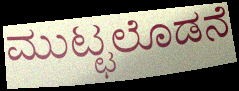
ಮುಟ್ಟಲೊಡನೆ